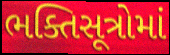
ભક્તિસૂત્રોમાં